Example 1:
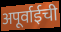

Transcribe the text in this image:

अपूर्वाईची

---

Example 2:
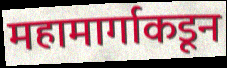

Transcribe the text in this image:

महामार्गाकडून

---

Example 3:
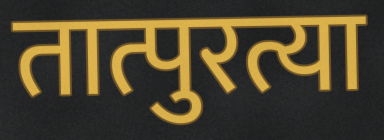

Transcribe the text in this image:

तात्पुरत्या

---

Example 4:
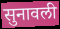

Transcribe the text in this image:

सुनावली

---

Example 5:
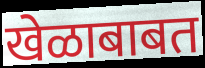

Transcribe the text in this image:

खेळाबाबत